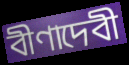
বীণাদেবী